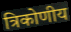
त्रिकोणीय